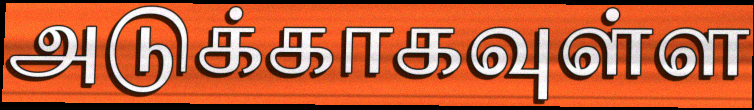
அடுக்காகவுள்ள